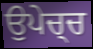
ਉਪੇਚ੍ਚ